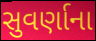
સુવર્ણાના